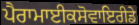
ਪੈਰਾਮਾਈਕਸੋਵਾਇਰੀਡੇ